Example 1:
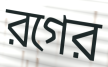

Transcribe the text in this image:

রগের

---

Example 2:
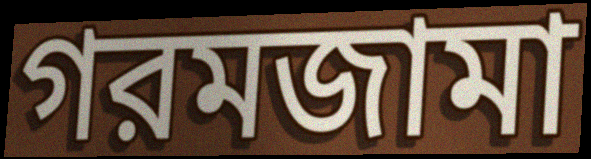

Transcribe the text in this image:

গরমজামা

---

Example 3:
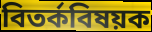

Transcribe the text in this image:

বিতর্কবিষয়ক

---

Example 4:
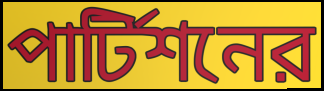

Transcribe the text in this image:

পার্টিশনের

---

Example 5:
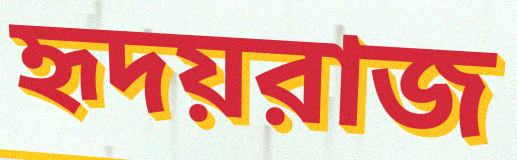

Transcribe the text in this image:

হৃদয়রাজ